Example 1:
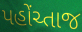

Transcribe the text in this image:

પહોંચ્તાજ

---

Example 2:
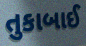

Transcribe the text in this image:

તુકાબાઈ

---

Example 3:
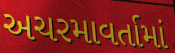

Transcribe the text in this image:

અચરમાવર્તામાં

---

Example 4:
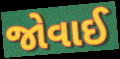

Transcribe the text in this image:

જોવાઈ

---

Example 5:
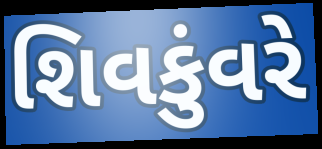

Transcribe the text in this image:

શિવકુંવરે